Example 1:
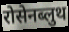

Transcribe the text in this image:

रोसेनब्लुथ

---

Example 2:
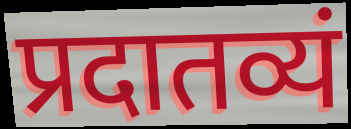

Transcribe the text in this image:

प्रदातव्यं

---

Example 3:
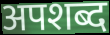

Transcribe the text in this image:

अपशब्‍द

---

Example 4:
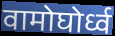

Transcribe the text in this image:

वामोघोर्ध्व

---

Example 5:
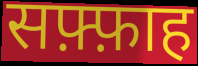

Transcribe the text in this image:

सफ़्फ़ाह